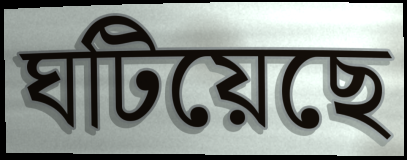
ঘটিয়েছে